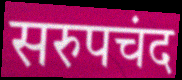
सरुपचंद